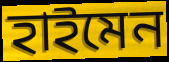
হাইমেন